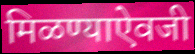
मिळण्याऐवजी